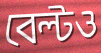
বেল্টও